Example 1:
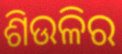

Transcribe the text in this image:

ଶିଉଳିର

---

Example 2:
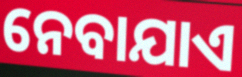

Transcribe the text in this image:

ନେବାଯାଏ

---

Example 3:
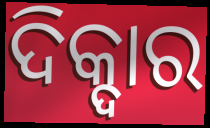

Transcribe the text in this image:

ଦିକ୍ଦାର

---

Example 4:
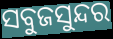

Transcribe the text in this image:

ସବୁଜସୁନ୍ଦର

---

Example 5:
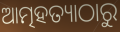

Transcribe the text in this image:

ଆତ୍ମହତ୍ୟାଠାରୁ